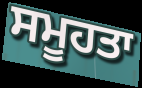
ਸਮੂਹਤਾ